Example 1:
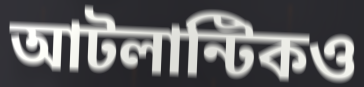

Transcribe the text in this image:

আটলান্টিকও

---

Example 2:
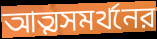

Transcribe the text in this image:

আত্মসমর্থনের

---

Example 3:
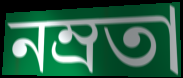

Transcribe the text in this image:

নম্রতা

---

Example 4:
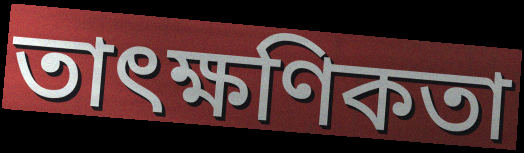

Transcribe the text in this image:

তাৎক্ষণিকতা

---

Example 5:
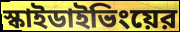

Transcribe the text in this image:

স্কাইডাইভিংয়ের